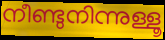
നീണ്ടുനിന്നുള്ളൂ